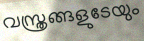
വസ്ത്രങ്ങളുടേയും